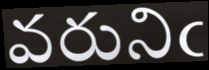
వరునిఁ